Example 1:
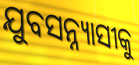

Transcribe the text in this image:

ଯୁବସନ୍ନ୍ୟାସୀକୁ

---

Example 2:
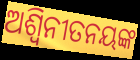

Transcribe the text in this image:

ଅଶ୍ୱିନୀତନୟଙ୍କ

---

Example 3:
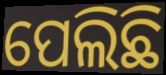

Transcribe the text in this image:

ପେଲିଛି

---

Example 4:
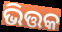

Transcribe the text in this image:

ଭିତ୍ତକ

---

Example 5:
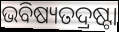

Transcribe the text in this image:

ଭବିଷ୍ୟତଦ୍ରଷ୍ଟା